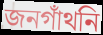
জনগাঁথনি